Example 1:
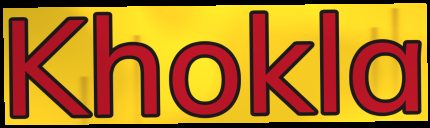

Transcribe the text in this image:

Khokla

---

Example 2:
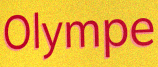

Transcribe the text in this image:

Olympe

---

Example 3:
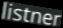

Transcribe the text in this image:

listner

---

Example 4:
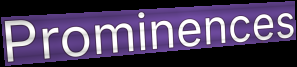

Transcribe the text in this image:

Prominences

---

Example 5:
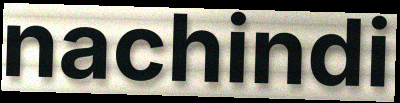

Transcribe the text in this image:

nachindi